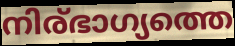
നിര്ഭാഗ്യത്തെ